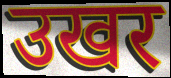
उखर